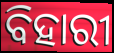
ବିହାରୀ